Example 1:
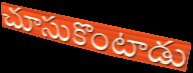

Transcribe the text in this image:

చూసుకొంటాడు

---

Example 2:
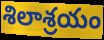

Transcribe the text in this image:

శిలాశ్రయం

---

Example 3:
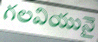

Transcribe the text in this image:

గలవియునై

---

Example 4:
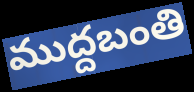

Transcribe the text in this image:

ముద్దబంతి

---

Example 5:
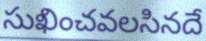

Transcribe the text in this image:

సుఖించవలసినదే